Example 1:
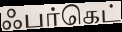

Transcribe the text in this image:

ஃபர்கெட்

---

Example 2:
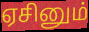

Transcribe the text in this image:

ஏசினும்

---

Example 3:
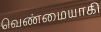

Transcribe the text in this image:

வெண்மையாகி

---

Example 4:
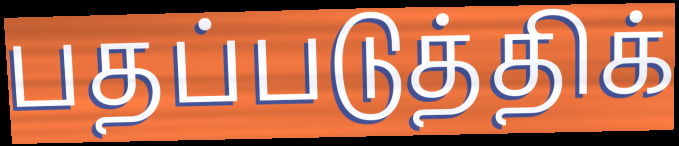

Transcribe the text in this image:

பதப்படுத்திக்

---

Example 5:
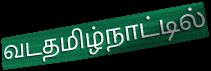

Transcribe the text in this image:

வடதமிழ்நாட்டில்